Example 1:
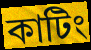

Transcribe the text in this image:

কাটিং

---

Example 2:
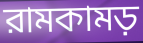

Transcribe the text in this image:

রামকামড়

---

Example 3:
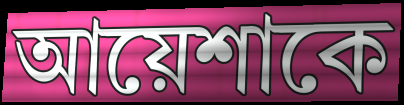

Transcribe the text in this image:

আয়েশাকে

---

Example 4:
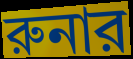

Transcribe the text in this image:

রুনার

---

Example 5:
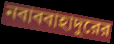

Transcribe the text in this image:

নবাববাহাদুরের